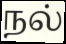
நல்